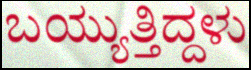
ಬಯ್ಯುತ್ತಿದ್ದಳು